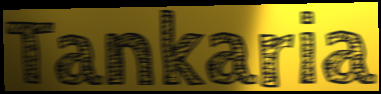
Tankaria